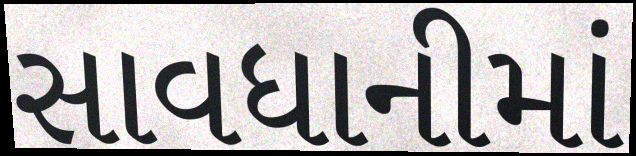
સાવધાનીમાં